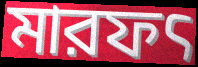
মারফৎ